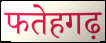
फतेहगढ़